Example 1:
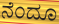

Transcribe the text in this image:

ನೆಂದೂ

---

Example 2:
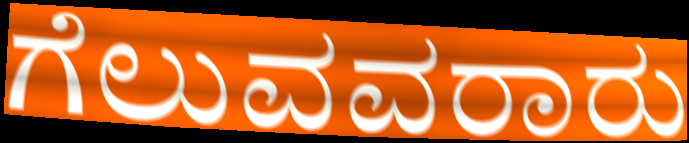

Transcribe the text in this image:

ಗೆಲುವವರಾರು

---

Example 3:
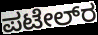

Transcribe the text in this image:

ಪಟೇಲ್‌ರ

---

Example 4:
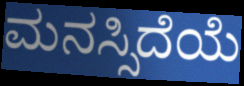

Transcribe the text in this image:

ಮನಸ್ಸಿದೆಯೆ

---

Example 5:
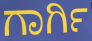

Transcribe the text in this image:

ಗಾರ್ಗಿ